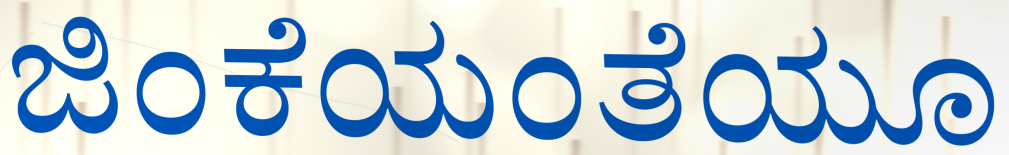
ಜಿಂಕೆಯಂತೆಯೂ